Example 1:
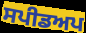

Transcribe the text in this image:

ਸਪੀਡਅਪ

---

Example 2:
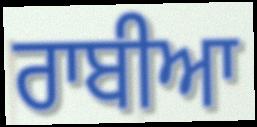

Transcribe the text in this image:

ਰਾਬੀਆ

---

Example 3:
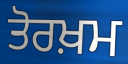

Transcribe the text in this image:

ਤੋਰਖ਼ਮ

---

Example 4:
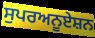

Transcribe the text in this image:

ਸੁਪਰਅਨੂਏਸ਼ਨ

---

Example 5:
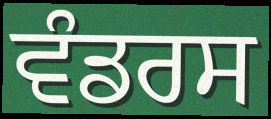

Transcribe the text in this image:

ਵੰਡਰਸ